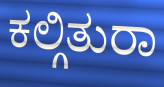
ಕಲ್ಗಿತುರಾ